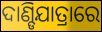
ଦାଣ୍ଡିଯାତ୍ରାରେ